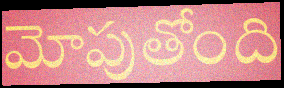
మోపుతోంది